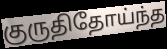
குருதிதோய்ந்த